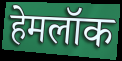
हेमलॉक